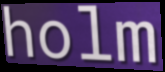
holm